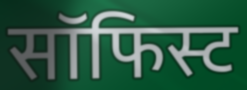
सॉफिस्ट